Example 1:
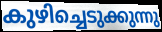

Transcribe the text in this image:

കുഴിച്ചെടുക്കുന്നു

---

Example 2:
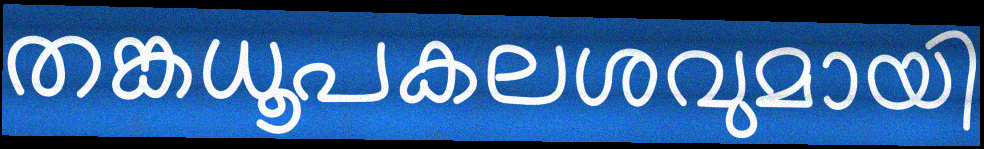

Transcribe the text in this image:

തങ്കധൂപകലശവുമായി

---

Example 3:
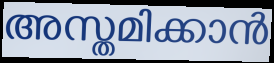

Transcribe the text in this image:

അസ്തമിക്കാൻ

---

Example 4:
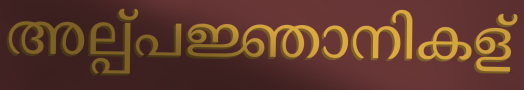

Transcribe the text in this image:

അല്പ്പജ്ഞാനികള്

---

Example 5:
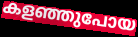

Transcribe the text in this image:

കളഞ്ഞുപോയ